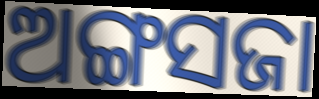
ଅଙ୍ଗସଜା